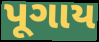
પૂગાય